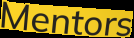
Mentors